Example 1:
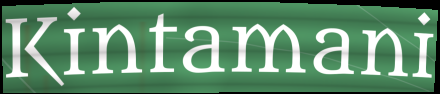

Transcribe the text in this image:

Kintamani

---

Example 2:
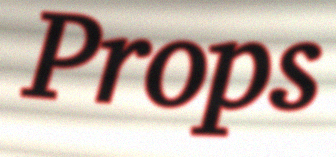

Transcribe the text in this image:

Props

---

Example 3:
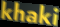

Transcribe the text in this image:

khaki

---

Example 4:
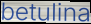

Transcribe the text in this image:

betulina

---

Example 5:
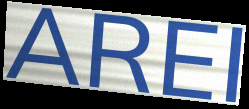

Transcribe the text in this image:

AREI